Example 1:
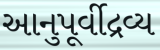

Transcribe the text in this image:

આનુપૂર્વીદ્રવ્ય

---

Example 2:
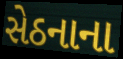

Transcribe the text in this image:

સેઠનાના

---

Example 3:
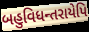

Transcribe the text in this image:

બહુવિધન્તરાયેપિ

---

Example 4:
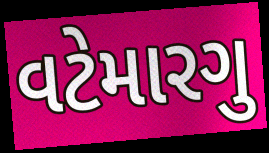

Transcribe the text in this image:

વટેમારગુ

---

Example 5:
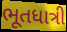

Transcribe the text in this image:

ભૂતધાત્રી